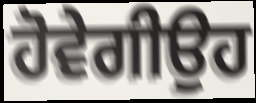
ਹੋਵੇਗੀਉਹ